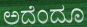
ಅದೆಂದೂ